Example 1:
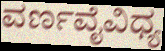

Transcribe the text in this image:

ವರ್ಣವೈವಿಧ್ಯ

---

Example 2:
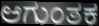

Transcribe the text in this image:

ಆಗುಂತಕ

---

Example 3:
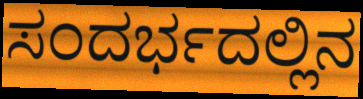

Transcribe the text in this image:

ಸಂದರ್ಭದಲ್ಲಿನ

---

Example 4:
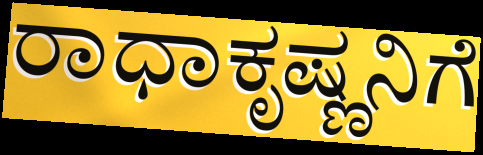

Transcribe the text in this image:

ರಾಧಾಕೃಷ್ಣನಿಗೆ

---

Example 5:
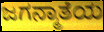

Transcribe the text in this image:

ಜಗನ್ಮಾತೆಯ